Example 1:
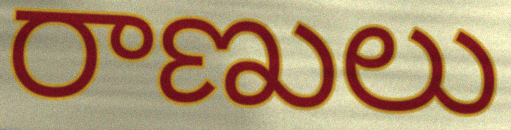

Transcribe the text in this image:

రాణులు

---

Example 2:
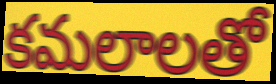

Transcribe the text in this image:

కమలాలతో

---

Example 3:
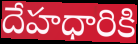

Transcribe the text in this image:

దేహధారికి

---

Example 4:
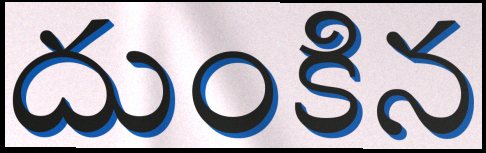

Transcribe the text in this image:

దుంకిన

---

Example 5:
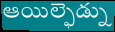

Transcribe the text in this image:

ఆయిల్ఫెడ్ను